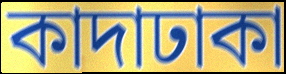
কাদাঢাকা